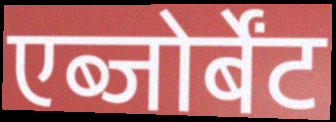
एब्जोर्बेंट